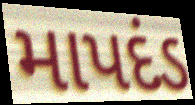
માપદંડ